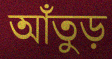
আঁতুড়